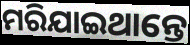
ମରିଯାଇଥାନ୍ତେ